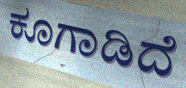
ಕೂಗಾಡಿದೆ